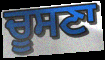
ਚੂਸਣਾ